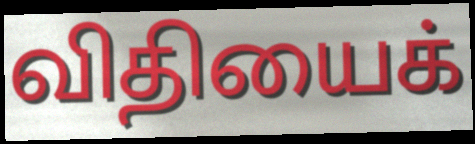
விதியைக்